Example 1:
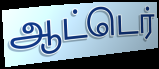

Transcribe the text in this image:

ஆட்டெர்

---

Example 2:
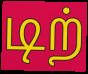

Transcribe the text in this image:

டிற்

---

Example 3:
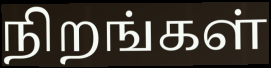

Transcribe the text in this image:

நிறங்கள்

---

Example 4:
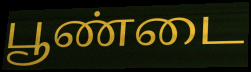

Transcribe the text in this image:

பூண்டை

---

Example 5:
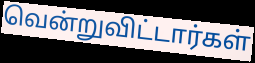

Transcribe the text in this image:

வென்றுவிட்டார்கள்